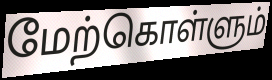
மேற்கொள்ளும்